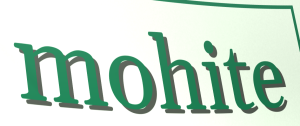
mohite